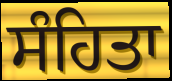
ਸੰਹਿਤਾ